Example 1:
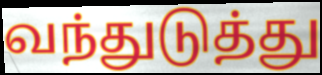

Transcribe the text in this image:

வந்துடுத்து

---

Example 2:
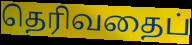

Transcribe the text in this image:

தெரிவதைப்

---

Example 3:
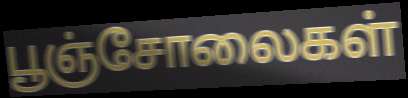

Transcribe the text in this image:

பூஞ்சோலைகள்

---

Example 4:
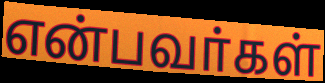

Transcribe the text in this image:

என்பவர்கள்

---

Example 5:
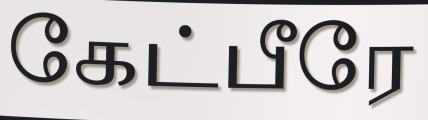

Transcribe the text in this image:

கேட்பீரே